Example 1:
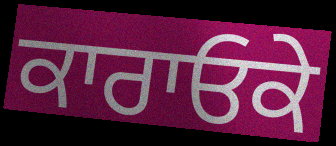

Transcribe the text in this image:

ਕਾਰਾਓਕੇ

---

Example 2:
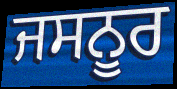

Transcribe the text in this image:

ਜਸਨੂਰ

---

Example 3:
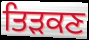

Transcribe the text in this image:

ਤਿੜਕਣ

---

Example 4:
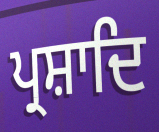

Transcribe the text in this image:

ਪ੍ਰਸ਼ਾਦਿ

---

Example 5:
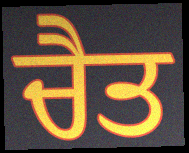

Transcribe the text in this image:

ਚੈਤ